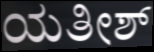
ಯತೀಶ್